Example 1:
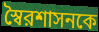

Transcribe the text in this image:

স্বৈরশাসনকে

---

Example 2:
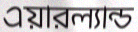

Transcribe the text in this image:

এয়ারল্যান্ড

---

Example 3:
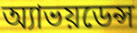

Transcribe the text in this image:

অ্যাভয়ডেন্স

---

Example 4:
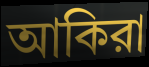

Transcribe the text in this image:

আকিরা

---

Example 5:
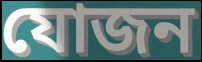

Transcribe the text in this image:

যোজন